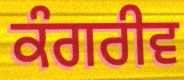
ਕੰਗਰੀਵ